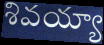
శివయ్యా